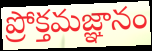
ప్రోక్తమజ్ఞానం